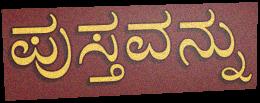
ಪುಸ್ತವನ್ನು